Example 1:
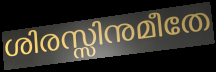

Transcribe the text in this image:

ശിരസ്സിനുമീതേ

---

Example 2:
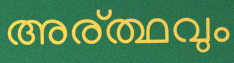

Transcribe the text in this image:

അര്ത്ഥവും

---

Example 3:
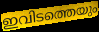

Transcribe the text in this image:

ഇവിടത്തെയും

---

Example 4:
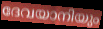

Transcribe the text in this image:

ദേവയാനിയും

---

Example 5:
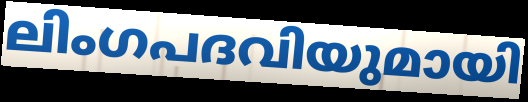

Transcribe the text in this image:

ലിംഗപദവിയുമായി